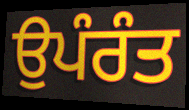
ਉਪੰਰੰਤ